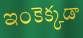
ఇంకెక్కడా